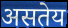
असतेय